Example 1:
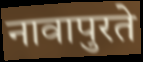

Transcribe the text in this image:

नावापुरते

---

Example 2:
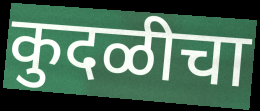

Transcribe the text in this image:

कुदळीचा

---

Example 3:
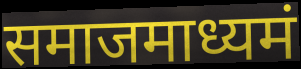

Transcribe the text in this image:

समाजमाध्यमं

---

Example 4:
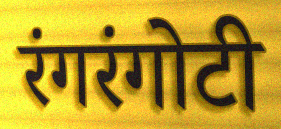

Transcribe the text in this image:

रंगरंगोटी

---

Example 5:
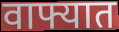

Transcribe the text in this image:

वाफ्यात